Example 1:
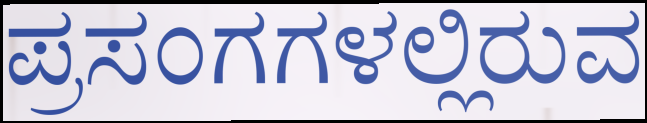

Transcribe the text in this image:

ಪ್ರಸಂಗಗಳಲ್ಲಿರುವ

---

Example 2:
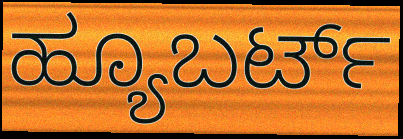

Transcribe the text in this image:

ಹ್ಯೂಬರ್ಟ್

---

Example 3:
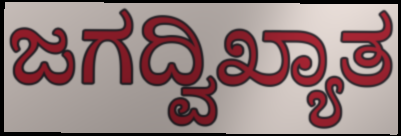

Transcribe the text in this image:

ಜಗದ್ವಿಖ್ಯಾತ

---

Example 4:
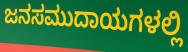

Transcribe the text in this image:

ಜನಸಮುದಾಯಗಳಲ್ಲಿ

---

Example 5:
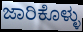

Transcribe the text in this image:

ಜಾರಿಕೊಳ್ಳು